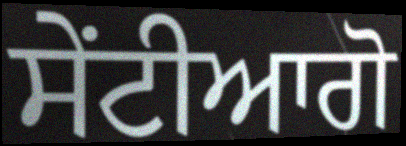
ਸੇਂਟੀਆਗੋ